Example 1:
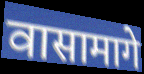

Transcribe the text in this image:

वासामागे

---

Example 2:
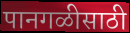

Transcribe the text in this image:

पानगळीसाठी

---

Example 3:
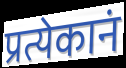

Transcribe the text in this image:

प्रत्येकानं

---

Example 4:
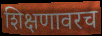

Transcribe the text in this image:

शिक्षणावरच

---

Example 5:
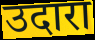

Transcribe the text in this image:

उदारा